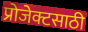
प्रोजेक्टसाठी